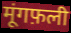
मूंगफ़ली